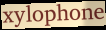
xylophone